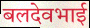
बलदेवभाई